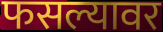
फसल्यावर